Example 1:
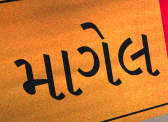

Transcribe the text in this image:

માગેલ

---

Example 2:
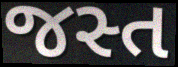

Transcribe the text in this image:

જસ્ત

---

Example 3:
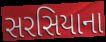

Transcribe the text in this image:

સરસિયાના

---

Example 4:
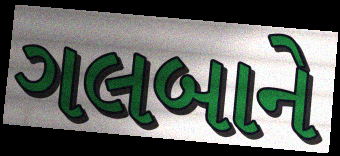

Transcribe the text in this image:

ગલબાને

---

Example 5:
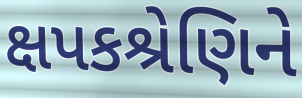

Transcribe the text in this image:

ક્ષપકશ્રેણિને